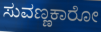
ಸುವಣ್ಣಕಾರೋ